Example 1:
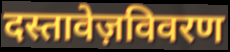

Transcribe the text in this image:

दस्तावेज़विवरण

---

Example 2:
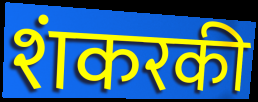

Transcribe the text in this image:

शंकरकी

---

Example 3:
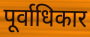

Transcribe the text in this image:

पूर्वाधिकार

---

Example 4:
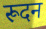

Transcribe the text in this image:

रूदन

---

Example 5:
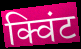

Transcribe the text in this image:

क्विंट